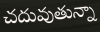
చదువుతున్నా